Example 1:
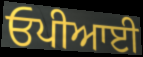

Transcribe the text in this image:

ਓਪੀਆਈ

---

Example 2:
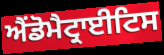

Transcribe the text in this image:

ਐਂਡੋਮੈਟ੍ਰਾਈਟਿਸ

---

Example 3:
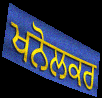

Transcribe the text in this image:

ਖਨੋਲਕਰ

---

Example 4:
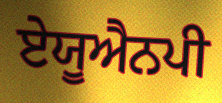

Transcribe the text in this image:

ਏਯੂਐਨਪੀ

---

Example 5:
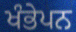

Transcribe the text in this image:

ਖੰਭੇਪਨ